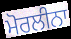
ਮੋਰਲੀਨਾ